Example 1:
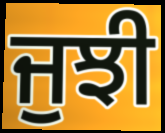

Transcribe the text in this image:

ਜੁਝੀ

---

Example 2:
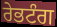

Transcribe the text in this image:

ਰੇਭਟੰਗ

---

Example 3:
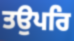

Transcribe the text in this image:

ਤਉਪਰਿ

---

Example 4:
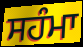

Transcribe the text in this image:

ਸਹੰਮਾ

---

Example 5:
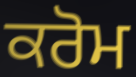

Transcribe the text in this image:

ਕਰੋਮ